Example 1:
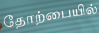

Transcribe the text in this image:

தோற்பையில்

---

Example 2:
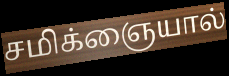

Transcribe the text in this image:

சமிக்ஞையால்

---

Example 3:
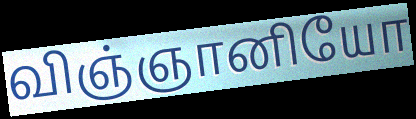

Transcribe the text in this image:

விஞ்ஞானியோ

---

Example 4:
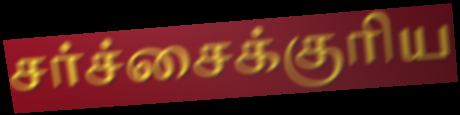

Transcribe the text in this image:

சர்ச்சைக்குரிய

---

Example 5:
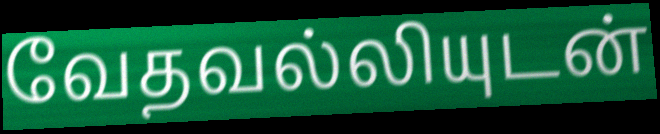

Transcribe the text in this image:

வேதவல்லியுடன்